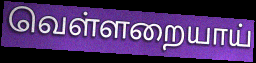
வெள்ளறையாய்